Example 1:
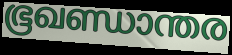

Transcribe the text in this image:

ഭൂഖണ്ഡാന്തര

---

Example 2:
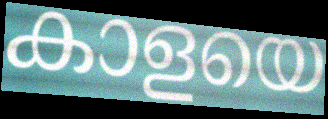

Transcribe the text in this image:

കാളയെ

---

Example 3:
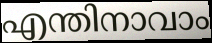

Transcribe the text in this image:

എന്തിനാവാം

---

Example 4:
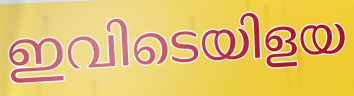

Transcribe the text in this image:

ഇവിടെയിളയ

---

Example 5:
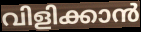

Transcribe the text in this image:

വിളിക്കാൻ